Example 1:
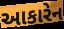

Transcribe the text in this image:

આકારેન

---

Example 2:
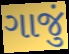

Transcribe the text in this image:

ગાજું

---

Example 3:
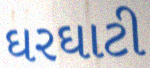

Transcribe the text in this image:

ઘરઘાટી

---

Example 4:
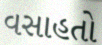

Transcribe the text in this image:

વસાહતો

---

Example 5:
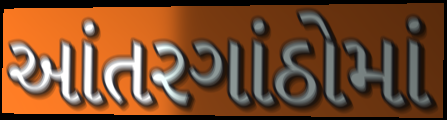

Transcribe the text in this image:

આંતરગાંઠોમાં